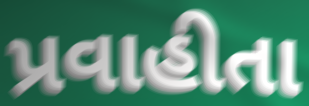
પ્રવાહીતા